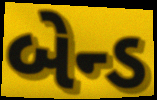
બેન્ડ